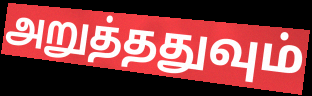
அறுத்ததுவும்